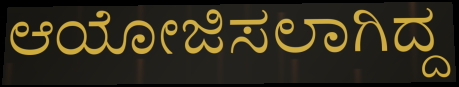
ಆಯೋಜಿಸಲಾಗಿದ್ದ